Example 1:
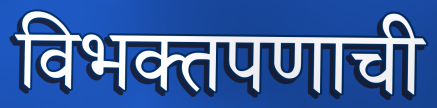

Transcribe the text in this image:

विभक्तपणाची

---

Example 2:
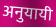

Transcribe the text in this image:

अनुयायी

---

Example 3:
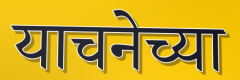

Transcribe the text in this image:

याचनेच्या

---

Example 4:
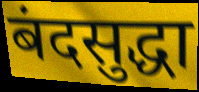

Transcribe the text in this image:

बंदसुद्धा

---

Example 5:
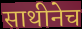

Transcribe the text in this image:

साथीनेच